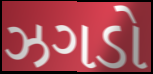
ઝગડો